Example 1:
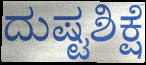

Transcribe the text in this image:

ದುಷ್ಟಶಿಕ್ಷೆ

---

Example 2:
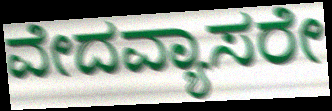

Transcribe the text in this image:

ವೇದವ್ಯಾಸರೇ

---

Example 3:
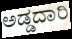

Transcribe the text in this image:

ಅಡ್ಡದಾರಿ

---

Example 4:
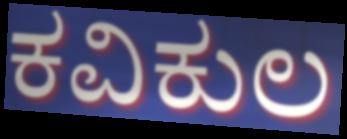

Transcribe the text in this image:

ಕವಿಕುಲ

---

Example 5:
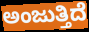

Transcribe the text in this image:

ಅಂಜುತ್ತಿದೆ